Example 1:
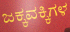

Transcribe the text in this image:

ಜಕ್ಕವಕ್ಕಿಗಳ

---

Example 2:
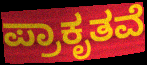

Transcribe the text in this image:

ಪ್ರಾಕೃತವೆ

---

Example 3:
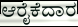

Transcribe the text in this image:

ಆರೈಕೆದಾರ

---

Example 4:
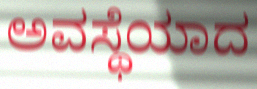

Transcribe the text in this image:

ಅವಸ್ಥೆಯಾದ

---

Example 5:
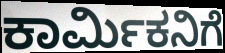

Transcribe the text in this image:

ಕಾರ್ಮಿಕನಿಗೆ